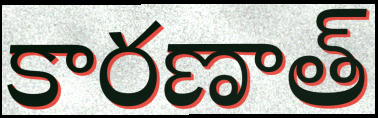
కారణాత్